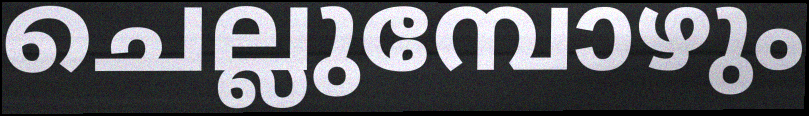
ചെല്ലുമ്പോഴും